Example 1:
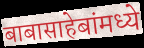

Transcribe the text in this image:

बाबासाहेबांमध्ये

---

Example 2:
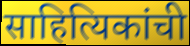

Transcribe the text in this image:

साहित्यिकांची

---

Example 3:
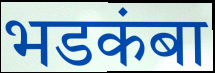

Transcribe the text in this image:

भडकंबा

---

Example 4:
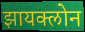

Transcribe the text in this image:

झायक्लोन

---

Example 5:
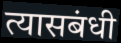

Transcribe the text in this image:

त्यासबंधी